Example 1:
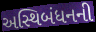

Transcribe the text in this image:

અસ્થિબંધનની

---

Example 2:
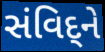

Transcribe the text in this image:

સંવિદ્‌ને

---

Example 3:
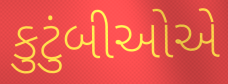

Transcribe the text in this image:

કુટુંબીઓએ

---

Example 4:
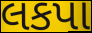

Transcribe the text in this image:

લકપા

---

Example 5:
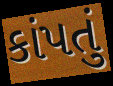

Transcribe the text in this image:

કાંપતું